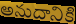
అనుదానికి